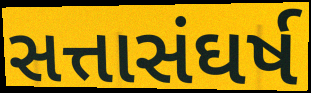
સત્તાસંઘર્ષ